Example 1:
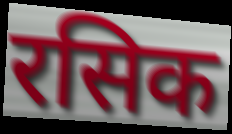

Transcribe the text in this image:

रसिक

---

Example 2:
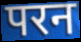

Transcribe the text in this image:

परन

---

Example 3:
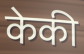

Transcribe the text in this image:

केकी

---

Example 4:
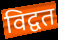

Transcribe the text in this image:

विद्वत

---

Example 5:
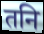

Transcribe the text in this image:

तनि